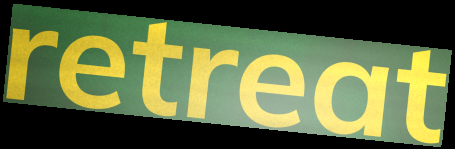
retreat